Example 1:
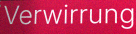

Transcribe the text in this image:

Verwirrung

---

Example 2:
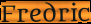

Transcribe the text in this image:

Fredric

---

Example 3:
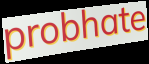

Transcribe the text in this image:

probhate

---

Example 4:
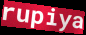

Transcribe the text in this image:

rupiya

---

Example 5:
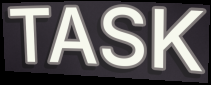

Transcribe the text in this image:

TASK